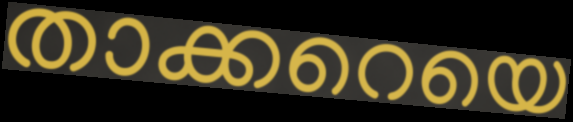
താക്കറെയെ